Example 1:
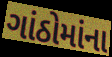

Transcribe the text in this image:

ગાંઠોમાંના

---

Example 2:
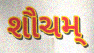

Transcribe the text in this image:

શૌચમ્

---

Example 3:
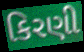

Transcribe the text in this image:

કિરણી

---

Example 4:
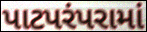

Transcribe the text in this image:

પાટપરંપરામાં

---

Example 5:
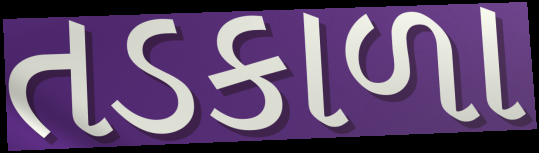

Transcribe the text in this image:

તડકાળા